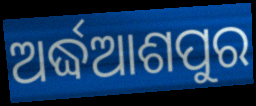
ଅର୍ଦ୍ଧଆଶପୁର